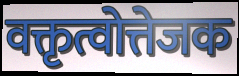
वक्तृत्वोत्तेजक